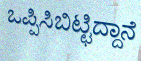
ಒಪ್ಪಿಸಿಬಿಟ್ಟಿದ್ದಾನೆ